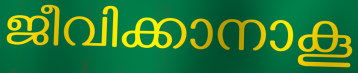
ജീവിക്കാനാകൂ